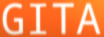
GITA